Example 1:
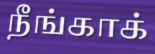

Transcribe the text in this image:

நீங்காக்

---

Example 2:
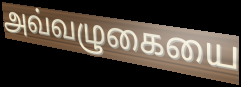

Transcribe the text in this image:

அவ்வழுகையை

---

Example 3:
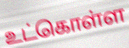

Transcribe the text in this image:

உட்கொள்ள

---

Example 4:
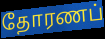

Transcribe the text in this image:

தோரணப்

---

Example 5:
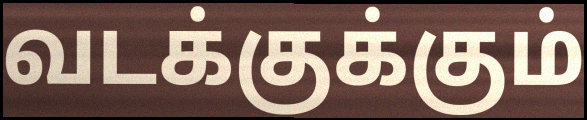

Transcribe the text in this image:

வடக்குக்கும்